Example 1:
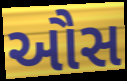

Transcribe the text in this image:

ઔસ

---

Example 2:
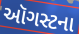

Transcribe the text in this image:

ઑગસ્ટના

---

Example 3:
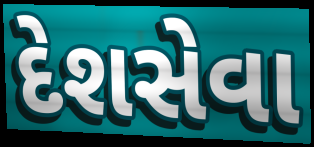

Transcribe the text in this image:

દેશસેવા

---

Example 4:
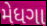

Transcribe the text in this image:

મેધગા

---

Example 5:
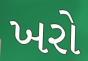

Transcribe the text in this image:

ખરો